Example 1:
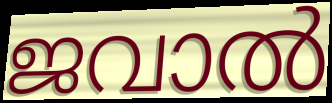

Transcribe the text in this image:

ജവാൽ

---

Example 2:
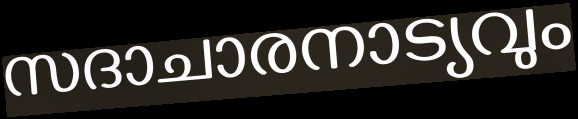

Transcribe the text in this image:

സദാചാരനാട്യവും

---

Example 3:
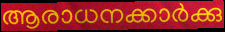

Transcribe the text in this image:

ആരാധനക്കാർക്കു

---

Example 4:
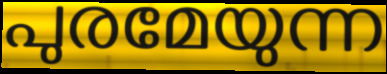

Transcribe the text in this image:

പുരമേയുന്ന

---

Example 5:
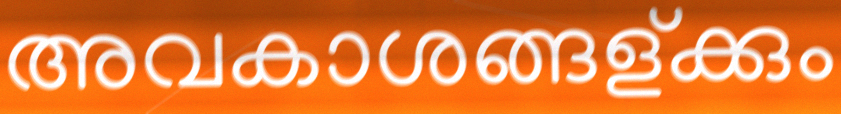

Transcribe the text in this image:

അവകാശങ്ങള്ക്കും